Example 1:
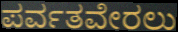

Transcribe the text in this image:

ಪರ್ವತವೇರಲು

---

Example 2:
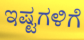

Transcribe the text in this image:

ಇಷ್ಟಗಳಿಗೆ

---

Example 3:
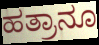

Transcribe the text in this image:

ಹತ್ರಾನೂ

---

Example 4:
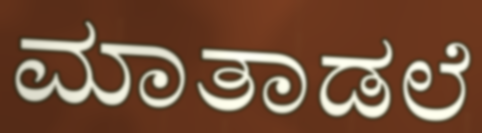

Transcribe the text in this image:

ಮಾತಾಡಲೆ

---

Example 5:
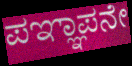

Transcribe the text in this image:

ಪಞ್ಞಾಪನೇ